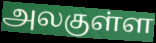
அலகுள்ள